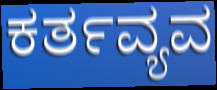
ಕರ್ತವ್ಯವ